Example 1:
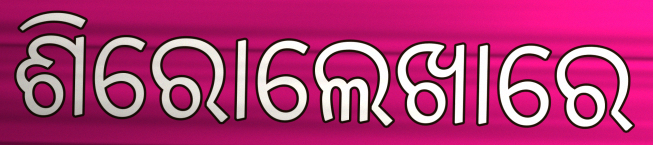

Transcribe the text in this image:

ଶିରୋଲେଖାରେ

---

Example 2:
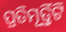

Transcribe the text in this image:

ପ୍ରତିମୂର୍ତ୍ତିଟି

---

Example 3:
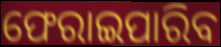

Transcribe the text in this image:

ଫେରାଇପାରିବ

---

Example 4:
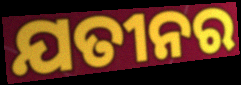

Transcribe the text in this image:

ଯତୀନର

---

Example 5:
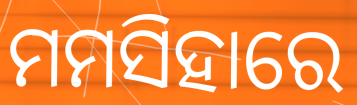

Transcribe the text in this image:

ମମସିହାରେ